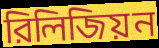
রিলিজিয়ন